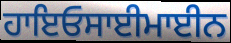
ਹਾਇਓਸਾਈਮਾਈਨ